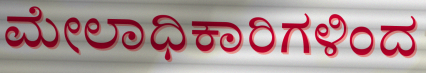
ಮೇಲಾಧಿಕಾರಿಗಳಿಂದ